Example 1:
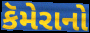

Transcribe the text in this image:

કૅમેરાનો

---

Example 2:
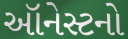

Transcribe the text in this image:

ઑનેસ્ટનો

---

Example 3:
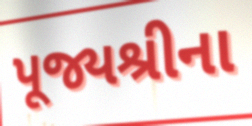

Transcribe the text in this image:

પૂજ્યશ્રીના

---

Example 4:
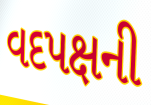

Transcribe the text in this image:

વદપક્ષની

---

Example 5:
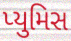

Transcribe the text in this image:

પ્યુમિસ